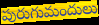
పురుగుమందులు